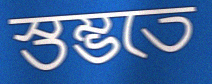
স্তম্ভতে